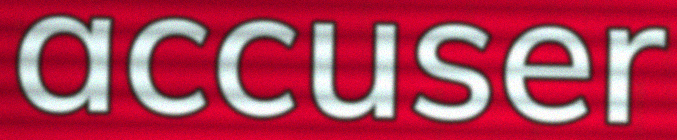
accuser